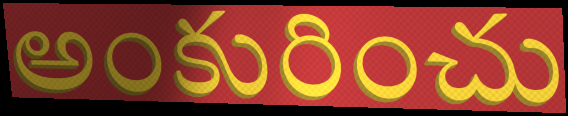
అంకురించు